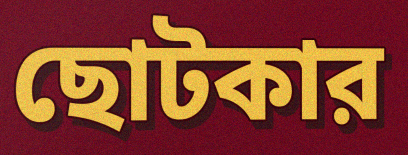
ছোটকার